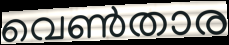
വെൺതാര